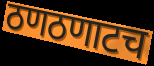
ठणठणाटच